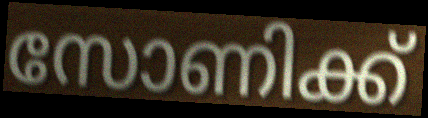
സോണിക്ക്